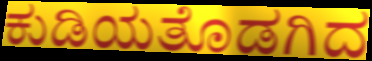
ಕುಡಿಯತೊಡಗಿದ